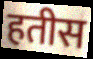
हतीस